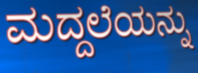
ಮದ್ದಲೆಯನ್ನು